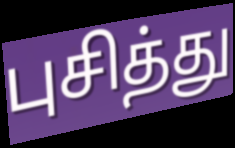
புசித்து